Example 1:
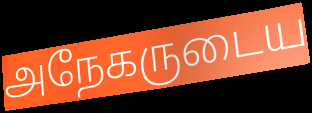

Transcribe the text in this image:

அநேகருடைய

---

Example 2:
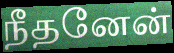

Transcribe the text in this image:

நீதனேன்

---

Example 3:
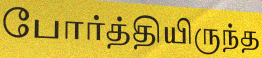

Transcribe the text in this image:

போர்த்தியிருந்த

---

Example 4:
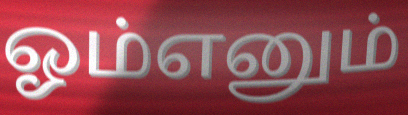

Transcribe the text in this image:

ஓம்எனும்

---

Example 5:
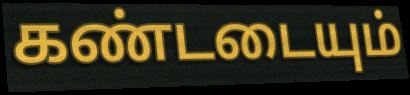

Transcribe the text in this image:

கண்டடையும்